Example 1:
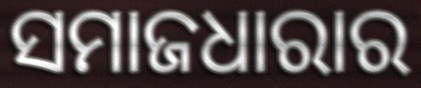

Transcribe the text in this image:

ସମାଜଧାରାର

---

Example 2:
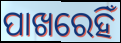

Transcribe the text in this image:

ପାଖରେହିଁ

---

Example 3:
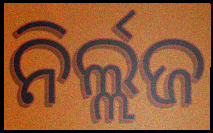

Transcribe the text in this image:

ନିର୍ଲ୍ଲଜ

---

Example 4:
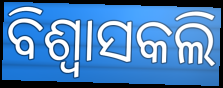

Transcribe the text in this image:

ବିଶ୍ଵାସକଲି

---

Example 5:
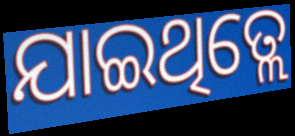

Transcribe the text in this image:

ଯାଇଥିତ୍ଲେ